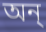
অন্